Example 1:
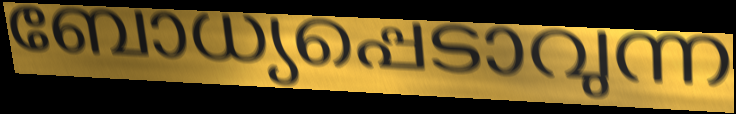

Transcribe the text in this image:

ബോധ്യപ്പെടാവുന്ന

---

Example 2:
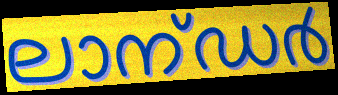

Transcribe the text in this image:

ലാന്ഡർ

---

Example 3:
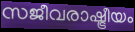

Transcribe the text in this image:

സജീവരാഷ്ട്രീയം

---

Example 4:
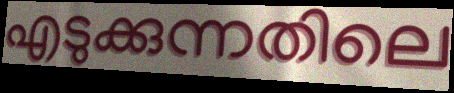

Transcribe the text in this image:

എടുക്കുന്നതിലെ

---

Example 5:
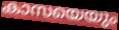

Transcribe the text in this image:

കാസയെയും